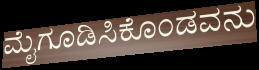
ಮೈಗೂಡಿಸಿಕೊಂಡವನು